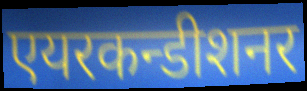
एयरकन्डीशनर